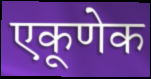
एकूणेक